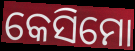
କେସିମୋ